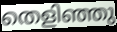
തെളിഞ്ഞു